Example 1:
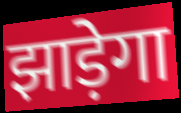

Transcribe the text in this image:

झाड़ेगा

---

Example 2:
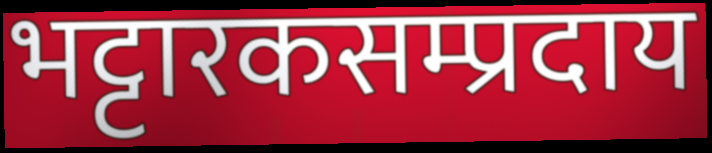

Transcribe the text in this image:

भट्टारकसम्प्रदाय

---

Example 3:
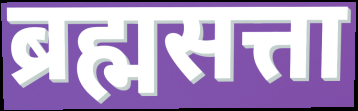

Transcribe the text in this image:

ब्रह्मसत्ता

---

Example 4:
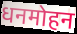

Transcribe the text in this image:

धनमोहन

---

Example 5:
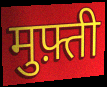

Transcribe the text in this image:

मुफ़्ती